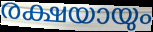
രക്ഷയായും